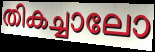
തികച്ചാലോ